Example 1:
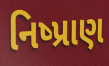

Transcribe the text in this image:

નિષ્પ્રાણ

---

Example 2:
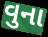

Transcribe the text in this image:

વુના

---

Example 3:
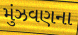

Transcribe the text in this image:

મુંઝવણના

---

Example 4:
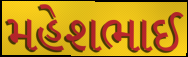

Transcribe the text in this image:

મહેશભાઈ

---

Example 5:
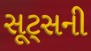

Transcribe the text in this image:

સૂટ્સની